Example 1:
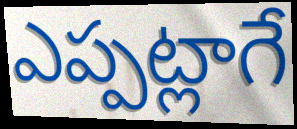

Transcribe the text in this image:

ఎప్పట్లాగే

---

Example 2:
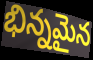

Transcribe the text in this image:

భిన్నమైన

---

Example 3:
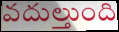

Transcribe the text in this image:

వదుల్తుంది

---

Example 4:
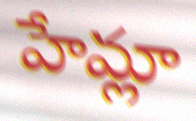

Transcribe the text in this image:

హేమ్లా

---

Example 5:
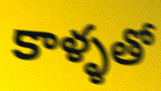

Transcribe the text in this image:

కాళ్ళతో